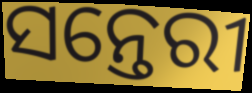
ସନ୍ତେରୀ